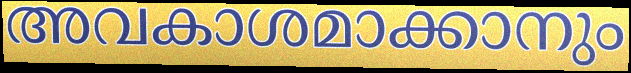
അവകാശമാക്കാനും